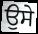
ਉਸੇ